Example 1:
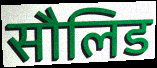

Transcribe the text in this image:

सौलिड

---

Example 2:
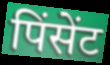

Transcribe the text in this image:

पिंसेंट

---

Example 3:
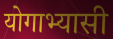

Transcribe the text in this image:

योगाभ्यासी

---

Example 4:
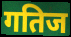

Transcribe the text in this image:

गतिज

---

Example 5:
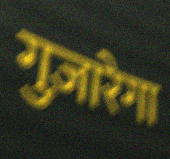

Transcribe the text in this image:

गुज़ारेगा